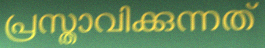
പ്രസ്താവിക്കുന്നത്